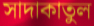
সাদাকাতুল